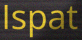
Ispat